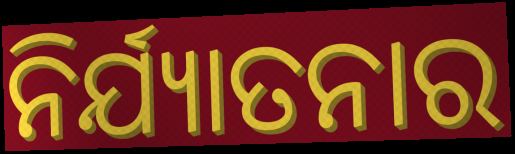
ନିର୍ଯ୍ୟାତନାର